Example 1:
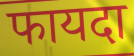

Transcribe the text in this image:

फायदा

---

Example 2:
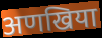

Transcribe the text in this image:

अणखिया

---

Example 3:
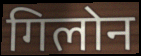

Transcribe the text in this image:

गिलोन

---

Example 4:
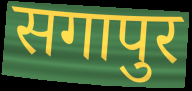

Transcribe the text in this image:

सगापुर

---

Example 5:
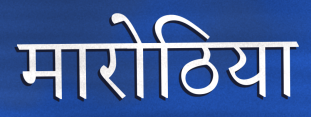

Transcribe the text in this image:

मारोठिया